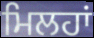
ਮਿਲਹਾਂ